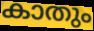
കാതും